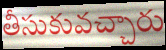
తీసుకువచ్చారు